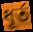
ধূৰ্ত